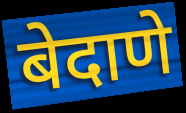
बेदाणे